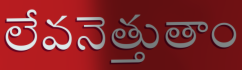
లేవనెత్తుతాం